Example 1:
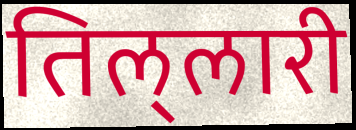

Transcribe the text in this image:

तिल्लारी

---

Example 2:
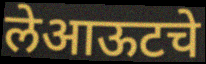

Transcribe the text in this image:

लेआऊटचे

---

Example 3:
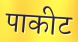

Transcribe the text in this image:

पाकीट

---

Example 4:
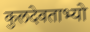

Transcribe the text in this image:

कुलदेवताभ्यो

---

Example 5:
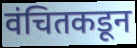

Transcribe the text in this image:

वंचितकडून